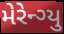
મેરેન્ગ્યુ